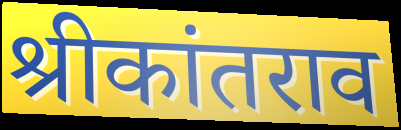
श्रीकांतराव